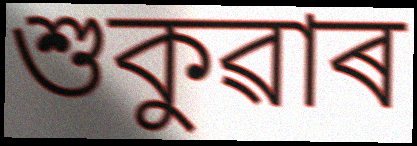
শুকুৱাৰ